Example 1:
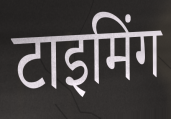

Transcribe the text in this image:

टाइमिंग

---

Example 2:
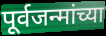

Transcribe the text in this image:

पूर्वजन्मांच्या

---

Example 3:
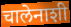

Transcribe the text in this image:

चालेनाशी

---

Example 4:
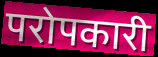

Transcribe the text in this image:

परोपकारी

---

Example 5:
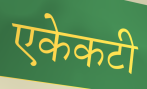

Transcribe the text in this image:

एकेकटी